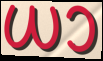
ധാ